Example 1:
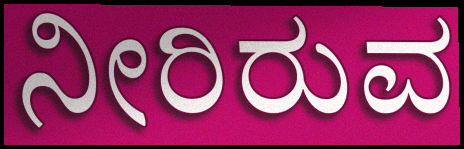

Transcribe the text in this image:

ನೀರಿರುವ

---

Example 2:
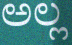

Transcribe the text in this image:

ಅಲ್ಲ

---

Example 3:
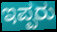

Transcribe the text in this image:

ಇಪ್ಪರು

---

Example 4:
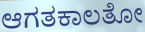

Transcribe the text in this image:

ಆಗತಕಾಲತೋ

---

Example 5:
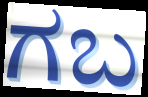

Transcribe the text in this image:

ಗಬ